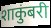
शाकुंबरी